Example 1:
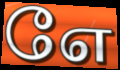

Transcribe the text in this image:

எே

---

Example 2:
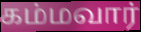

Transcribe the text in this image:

கம்மவார்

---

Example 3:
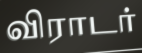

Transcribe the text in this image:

விராடர்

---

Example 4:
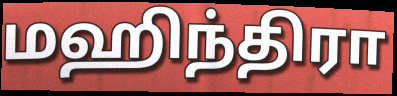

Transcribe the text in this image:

மஹிந்திரா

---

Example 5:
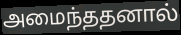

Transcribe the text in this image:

அமைந்ததனால்